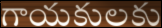
గాయకులకు